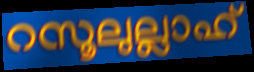
റസൂലുല്ലാഹ്